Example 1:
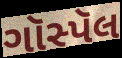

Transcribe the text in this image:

ગૉસ્પૅલ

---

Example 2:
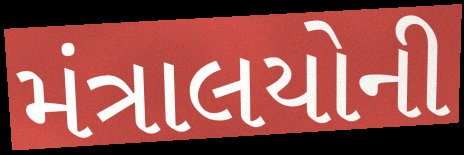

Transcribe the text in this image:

મંત્રાલયોની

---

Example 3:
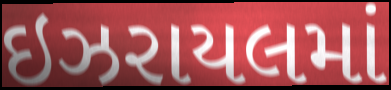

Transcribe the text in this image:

ઇઝરાયલમાં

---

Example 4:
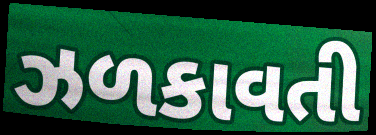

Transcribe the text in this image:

ઝળકાવતી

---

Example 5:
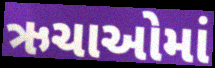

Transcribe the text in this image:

ઋચાઓમાં